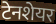
टेनशेयर